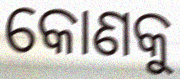
କୋଣକୁ